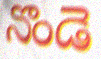
నొండె